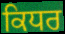
ਕਿਧਰ